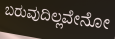
ಬರುವುದಿಲ್ಲವೇನೋ